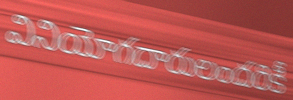
వినియోగదారులందరికీ